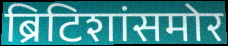
ब्रिटिशांसमोर